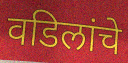
वडिलांचे